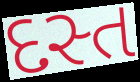
દસ્ત